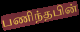
பணிந்தபின்